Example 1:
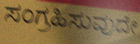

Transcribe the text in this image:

ಸಂಗ್ರಹಿಸುವುದೇ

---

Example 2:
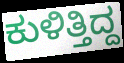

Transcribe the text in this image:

ಕುಳಿತ್ತಿದ್ದ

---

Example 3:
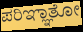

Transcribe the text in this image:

ಪರಿಞ್ಞಾತೋ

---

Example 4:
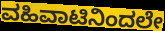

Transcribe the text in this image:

ವಹಿವಾಟಿನಿಂದಲೇ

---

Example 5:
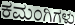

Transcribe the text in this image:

ಕಮಂಗಿಗಳು